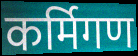
कर्मिगण